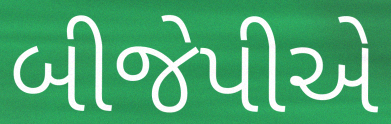
બીજેપીએ